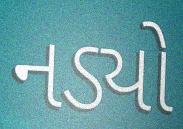
નડ્યો